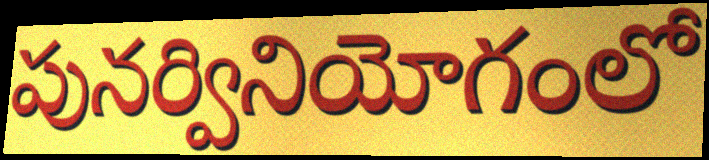
పునర్వినియోగంలో